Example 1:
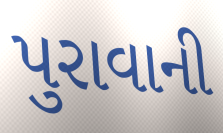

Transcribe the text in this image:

પુરાવાની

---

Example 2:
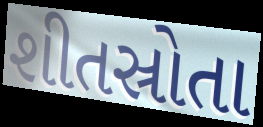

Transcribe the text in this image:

શીતસ્રોતા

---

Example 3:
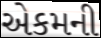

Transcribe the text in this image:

એકમની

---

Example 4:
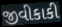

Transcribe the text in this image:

જીવીકાકી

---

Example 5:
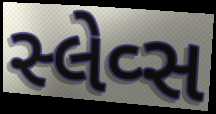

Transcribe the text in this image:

સ્લેવ્સ